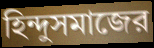
হিন্দুসমাজের